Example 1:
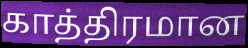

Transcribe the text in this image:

காத்திரமான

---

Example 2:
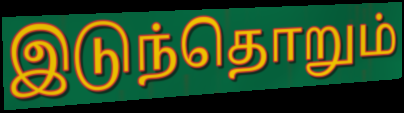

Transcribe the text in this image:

இடுந்தொறும்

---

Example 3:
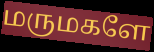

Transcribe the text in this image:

மருமகளே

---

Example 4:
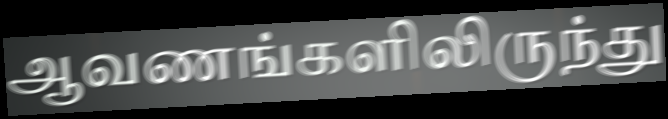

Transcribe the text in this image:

ஆவணங்களிலிருந்து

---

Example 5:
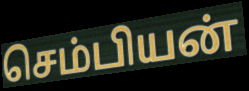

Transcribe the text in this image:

செம்பியன்